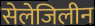
सेलेजिलीन